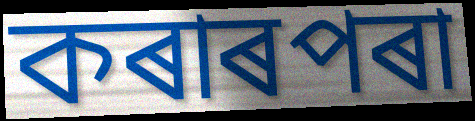
কৰাৰপৰা